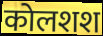
कोलशश